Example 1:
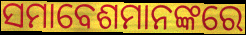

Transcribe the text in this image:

ସମାବେଶମାନଙ୍କରେ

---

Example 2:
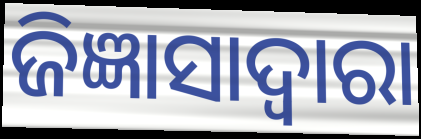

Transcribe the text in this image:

ଜିଜ୍ଞାସାଦ୍ୱାରା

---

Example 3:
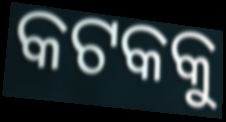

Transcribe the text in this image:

କଟକକୁ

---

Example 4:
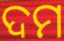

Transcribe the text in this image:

ଦମ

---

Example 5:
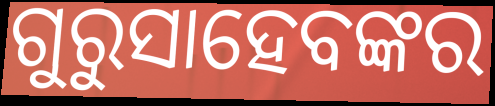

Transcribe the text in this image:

ଗୁରୁସାହେବଙ୍କର